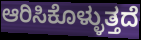
ಆರಿಸಿಕೊಳ್ಳುತ್ತದೆ